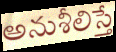
అనుశీలిస్తే